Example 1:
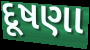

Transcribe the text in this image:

દૂષણા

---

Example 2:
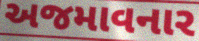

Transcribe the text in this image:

અજમાવનાર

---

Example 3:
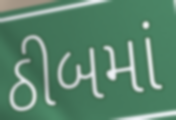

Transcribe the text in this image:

ઠીબમાં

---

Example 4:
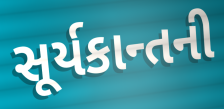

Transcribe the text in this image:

સૂર્યકાન્તની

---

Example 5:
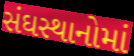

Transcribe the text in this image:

સંઘસ્થાનોમાં